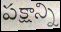
పక్షాన్ని